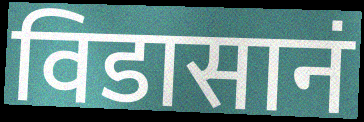
विडासानं